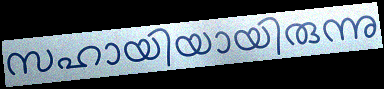
സഹായിയായിരുന്നു